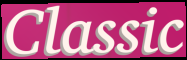
Classic